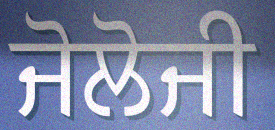
ਜੋਲੋਜੀ